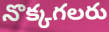
నొక్కగలరు